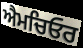
ਐਮਚਿਓਰ